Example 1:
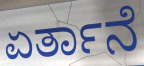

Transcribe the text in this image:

ಏರ್ತಾನೆ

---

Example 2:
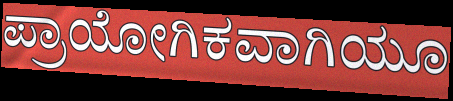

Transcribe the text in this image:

ಪ್ರಾಯೋಗಿಕವಾಗಿಯೂ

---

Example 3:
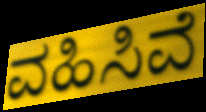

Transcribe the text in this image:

ವಹಿಸಿವೆ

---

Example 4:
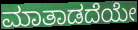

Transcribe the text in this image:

ಮಾತಾಡದೆಯೇ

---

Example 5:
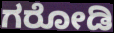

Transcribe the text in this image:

ಗರೋಡಿ